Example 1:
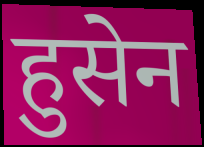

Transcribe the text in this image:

हुसेन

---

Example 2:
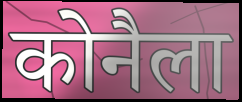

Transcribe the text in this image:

कोनैला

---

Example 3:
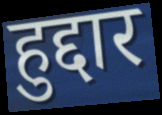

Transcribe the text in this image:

हुद्दार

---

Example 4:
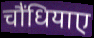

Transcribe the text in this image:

चौंधियाए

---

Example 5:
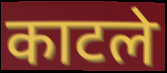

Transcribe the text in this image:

काटले